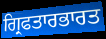
ਗ੍ਰਿਫਤਾਰਭਾਰਤ